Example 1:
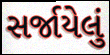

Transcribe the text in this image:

સર્જાયેલું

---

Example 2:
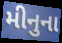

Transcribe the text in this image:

મીનુના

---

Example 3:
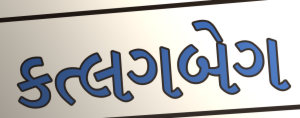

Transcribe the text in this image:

કત્લગબેગ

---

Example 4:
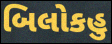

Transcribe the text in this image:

બિલોકહુ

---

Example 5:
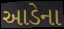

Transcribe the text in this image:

આડેના